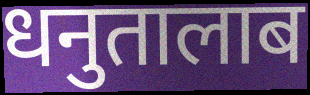
धनुतालाब